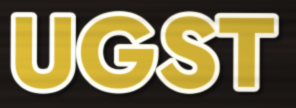
UGST